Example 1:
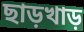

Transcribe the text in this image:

ছাড়খাড়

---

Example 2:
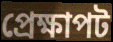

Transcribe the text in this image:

প্রেক্ষাপট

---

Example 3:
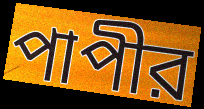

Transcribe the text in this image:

পাপীর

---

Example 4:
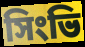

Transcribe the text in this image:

সিংভি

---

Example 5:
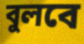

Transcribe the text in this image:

বুলবে